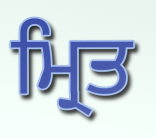
ਮ੍ਰਿਤ